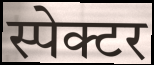
स्पेक्टर